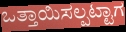
ಒತ್ತಾಯಿಸಲ್ಪಟ್ಟಾಗ